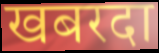
खबरदा